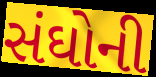
સંઘોની